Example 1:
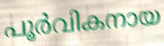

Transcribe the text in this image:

പൂർവികനായ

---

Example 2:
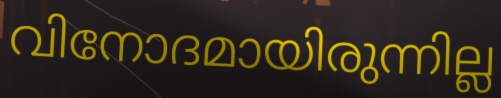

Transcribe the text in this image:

വിനോദമായിരുന്നില്ല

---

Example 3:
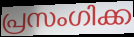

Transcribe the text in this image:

പ്രസംഗിക്ക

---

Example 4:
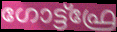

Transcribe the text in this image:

ഗോട്ട്ഫ്രേ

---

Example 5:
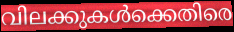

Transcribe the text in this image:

വിലക്കുകൾക്കെതിരെ